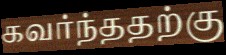
கவர்ந்ததற்கு